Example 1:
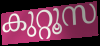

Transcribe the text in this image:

കുറ്റൂസ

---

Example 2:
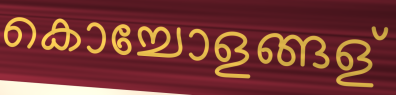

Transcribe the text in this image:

കൊച്ചോളങ്ങള്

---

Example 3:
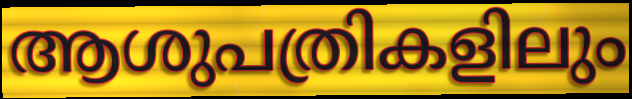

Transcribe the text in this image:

ആശുപത്രികളിലും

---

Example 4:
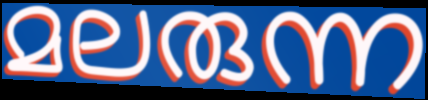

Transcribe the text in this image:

മലരുന്ന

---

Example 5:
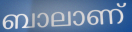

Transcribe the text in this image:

ബാലാണ്